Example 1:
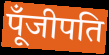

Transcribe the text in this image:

पूँजीपति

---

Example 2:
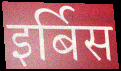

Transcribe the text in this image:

इर्बिस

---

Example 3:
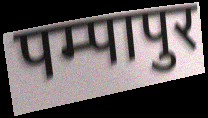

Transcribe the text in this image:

पम्पापुर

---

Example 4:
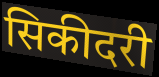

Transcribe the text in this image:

सिकीदरी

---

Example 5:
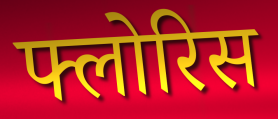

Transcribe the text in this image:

फ्लोरिस